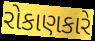
રોકાણકારે